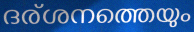
ദര്ശനത്തെയും